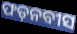
ଫଡ଼ନବୀସ